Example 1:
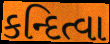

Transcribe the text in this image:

કન્દિત્વા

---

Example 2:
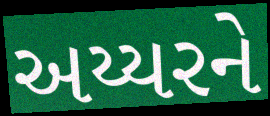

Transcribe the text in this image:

અય્યરને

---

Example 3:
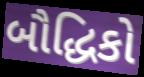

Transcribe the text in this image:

બૌદ્ધિકો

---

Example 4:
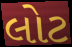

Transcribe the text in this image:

લોટ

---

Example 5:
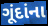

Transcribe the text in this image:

ગૂંદાંના